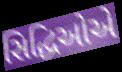
સિદ્ધિઓએ